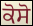
ਕੋਸੋ